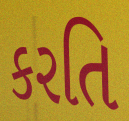
કરતિ